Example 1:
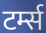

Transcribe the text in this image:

टर्म्स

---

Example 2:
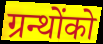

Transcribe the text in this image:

ग्रन्थोंको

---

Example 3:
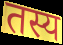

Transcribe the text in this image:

तस्य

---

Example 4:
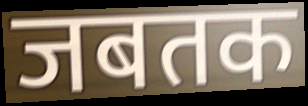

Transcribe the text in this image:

जबतक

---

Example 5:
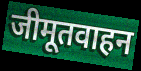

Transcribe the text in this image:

जीमूतवाहन